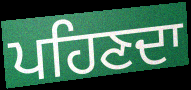
ਪਹਿਣਦਾ